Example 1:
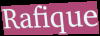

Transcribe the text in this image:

Rafique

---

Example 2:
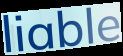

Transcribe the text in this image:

liable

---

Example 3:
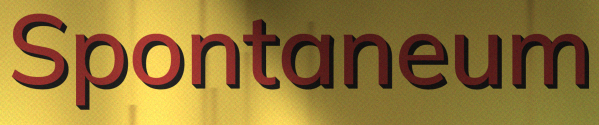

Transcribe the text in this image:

Spontaneum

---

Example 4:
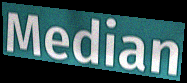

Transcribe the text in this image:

Median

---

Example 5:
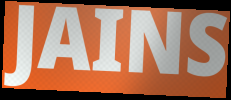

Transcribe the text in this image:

JAINS